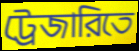
ট্রেজারিতে